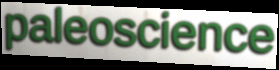
paleoscience